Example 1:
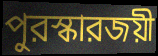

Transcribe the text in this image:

পুরস্কারজয়ী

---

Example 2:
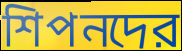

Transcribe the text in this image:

শিপনদের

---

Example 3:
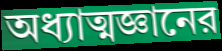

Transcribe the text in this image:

অধ্যাত্মজ্ঞানের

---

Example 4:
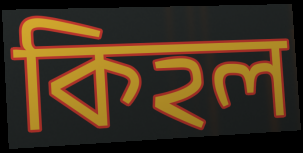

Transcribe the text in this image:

কিহল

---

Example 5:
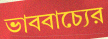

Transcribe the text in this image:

ভাববাচ্যের